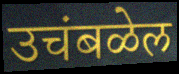
उचंबळेल